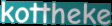
kottheke